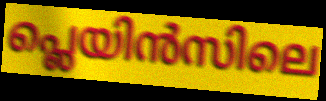
പ്ലെയിൻസിലെ